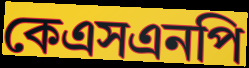
কেএসএনপি